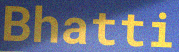
Bhatti